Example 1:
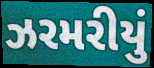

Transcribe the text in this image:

ઝરમરીયું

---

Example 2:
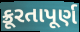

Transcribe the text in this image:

ક્રૂરતાપૂર્ણ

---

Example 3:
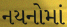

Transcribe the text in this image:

નયનોમાં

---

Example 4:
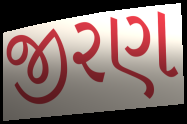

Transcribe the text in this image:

જીરણ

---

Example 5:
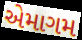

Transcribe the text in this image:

એમાગમ